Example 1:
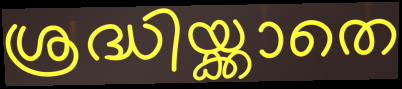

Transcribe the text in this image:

ശ്രദ്ധിയ്ക്കാതെ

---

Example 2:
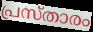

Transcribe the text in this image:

പ്രസ്താരം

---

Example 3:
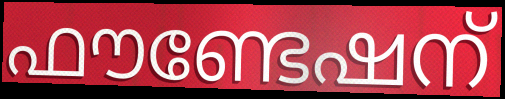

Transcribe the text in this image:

ഫൗണ്ടേഷന്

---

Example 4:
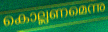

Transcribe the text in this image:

കൊല്ലണമെന്നു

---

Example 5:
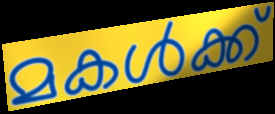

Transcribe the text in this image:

മകൾക്ക്